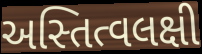
અસ્તિત્વલક્ષી